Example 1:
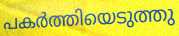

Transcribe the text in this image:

പകർത്തിയെടുത്തു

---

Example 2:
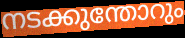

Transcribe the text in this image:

നടക്കുന്തോറും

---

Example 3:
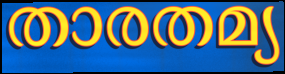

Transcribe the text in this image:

താരതമ്യ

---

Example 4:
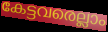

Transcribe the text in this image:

കേട്ടവരെല്ലാം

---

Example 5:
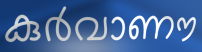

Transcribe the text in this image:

കുർവാണൗ